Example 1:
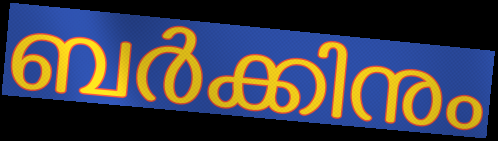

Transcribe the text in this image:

ബർക്കിനും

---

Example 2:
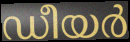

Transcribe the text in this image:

ഡീയർ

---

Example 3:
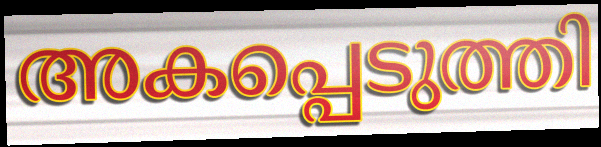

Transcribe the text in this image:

അകപ്പെടുത്തി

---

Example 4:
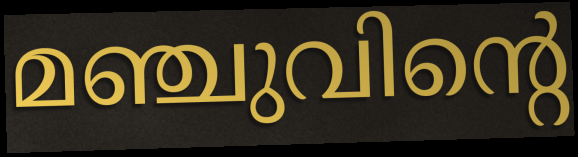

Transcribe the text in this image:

മഞ്ചുവിന്റെ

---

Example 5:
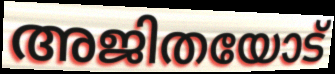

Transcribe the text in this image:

അജിതയോട്